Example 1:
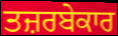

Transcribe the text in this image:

ਤਜ਼ਰਬੇਕਾਰ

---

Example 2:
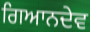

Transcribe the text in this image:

ਗਿਆਨਦੇਵ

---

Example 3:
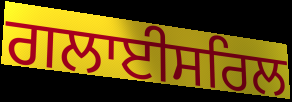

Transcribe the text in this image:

ਗਲਾਈਸਰਿਲ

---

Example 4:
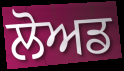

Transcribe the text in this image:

ਲੋਅਡ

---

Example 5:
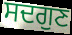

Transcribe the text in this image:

ਸਦਗੁਣ